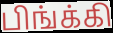
பிங்க்கி